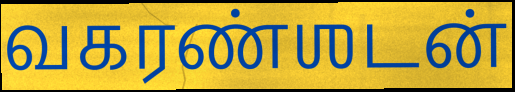
வகரண்ஶடன்